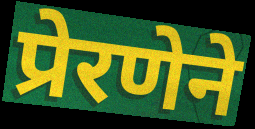
प्रेरणेने